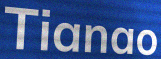
Tianao